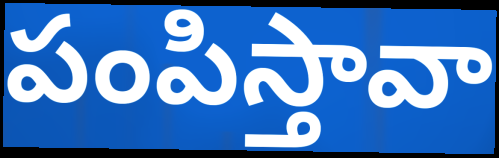
పంపిస్తావా